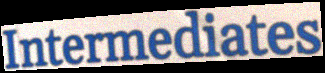
Intermediates